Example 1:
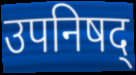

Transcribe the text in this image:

उपनिषद्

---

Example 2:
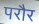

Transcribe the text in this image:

परौर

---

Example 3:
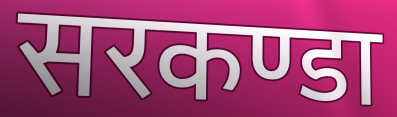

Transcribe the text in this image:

सरकण्डा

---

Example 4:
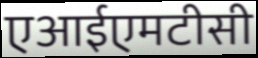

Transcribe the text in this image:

एआईएमटीसी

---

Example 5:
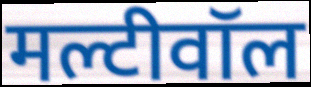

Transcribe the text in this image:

मल्टीवॉल